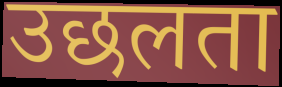
उछलता